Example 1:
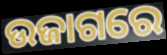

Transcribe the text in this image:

ଉଜାଗରେ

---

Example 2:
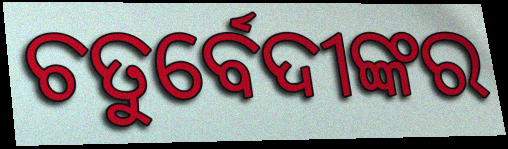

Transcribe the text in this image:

ଚତୁର୍ବେଦୀଙ୍କର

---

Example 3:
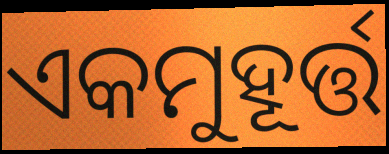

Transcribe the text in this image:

ଏକମୁହୂର୍ତ୍ତ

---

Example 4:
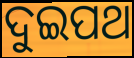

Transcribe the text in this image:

ଦୁଇପଥ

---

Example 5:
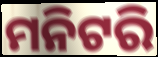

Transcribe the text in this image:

ମନିଟରି